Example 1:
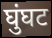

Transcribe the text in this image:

घुंघट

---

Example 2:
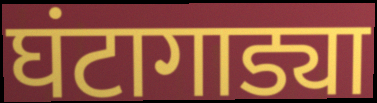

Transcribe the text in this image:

घंटागाड्या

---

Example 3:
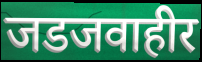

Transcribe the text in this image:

जडजवाहीर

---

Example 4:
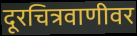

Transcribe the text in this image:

दूरचित्रवाणीवर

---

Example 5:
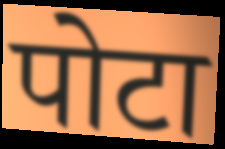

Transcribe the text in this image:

पोटा